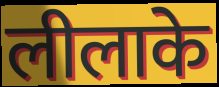
लीलाके